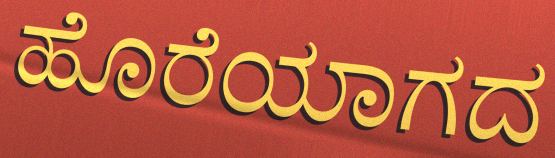
ಹೊರೆಯಾಗದ